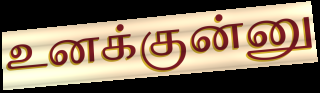
உனக்குன்னு